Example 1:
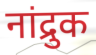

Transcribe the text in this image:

नांद्रुक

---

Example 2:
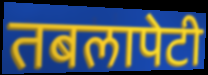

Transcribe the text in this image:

तबलापेटी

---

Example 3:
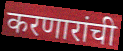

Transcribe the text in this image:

करणारांची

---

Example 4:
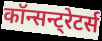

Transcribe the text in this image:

कॉन्सन्ट्रेटर्स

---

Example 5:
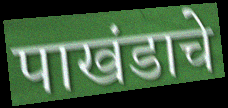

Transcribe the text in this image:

पाखंडाचे